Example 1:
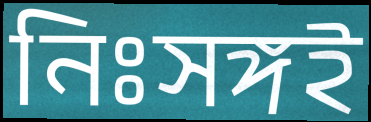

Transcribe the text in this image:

নিঃসঙ্গই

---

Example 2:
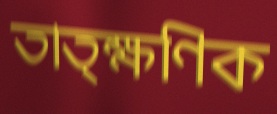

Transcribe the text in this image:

তাত্ক্ষণিক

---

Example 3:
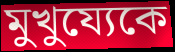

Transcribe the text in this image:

মুখুয্যেকে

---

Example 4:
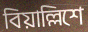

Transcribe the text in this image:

বিয়াল্লিশে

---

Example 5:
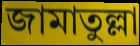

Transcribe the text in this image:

জামাতুল্লা